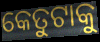
କେତୁଟାକୁ